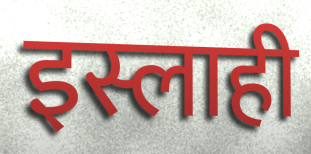
इस्लाही